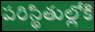
పరిస్థితుల్లోకి